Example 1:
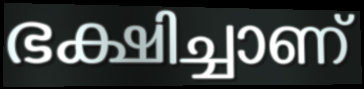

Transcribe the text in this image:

ഭക്ഷിച്ചാണ്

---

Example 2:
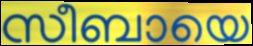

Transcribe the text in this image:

സീബായെ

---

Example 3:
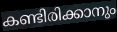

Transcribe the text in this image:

കണ്ടിരിക്കാനും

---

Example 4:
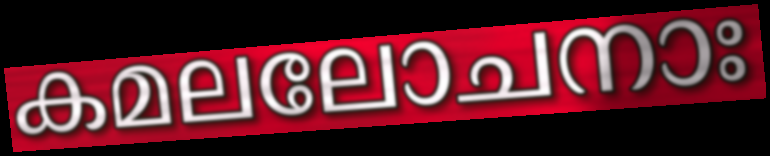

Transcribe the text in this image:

കമലലോചനാഃ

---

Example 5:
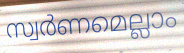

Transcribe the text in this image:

സ്വർണമെല്ലാം